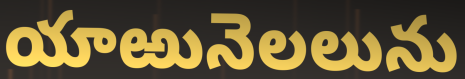
యాఱునెలలును